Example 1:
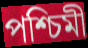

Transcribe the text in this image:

পশ্চিমী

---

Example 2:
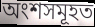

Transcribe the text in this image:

অংশসমূহত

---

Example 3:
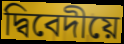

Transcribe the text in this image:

দ্বিবেদীয়ে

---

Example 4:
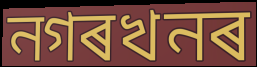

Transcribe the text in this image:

নগৰখনৰ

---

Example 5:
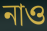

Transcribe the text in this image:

নাও